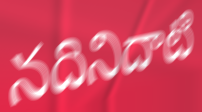
నదినిదాటి